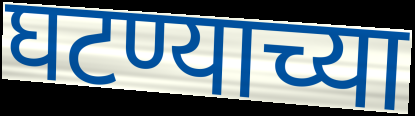
घटण्याच्या